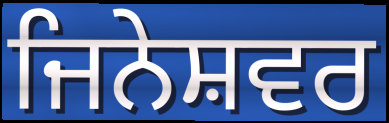
ਜਿਨੇਸ਼ਵਰ